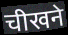
चीखने